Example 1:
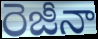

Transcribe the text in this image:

రెజీనా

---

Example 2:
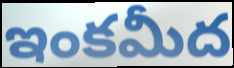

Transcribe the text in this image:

ఇంకమీద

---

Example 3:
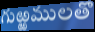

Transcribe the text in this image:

గుఱ్ఱములతొ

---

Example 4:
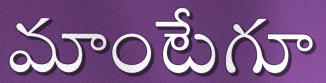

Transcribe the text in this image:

మాంటేగూ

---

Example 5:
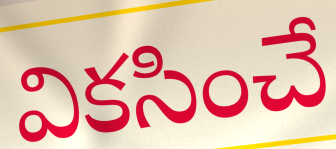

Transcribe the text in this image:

వికసించే